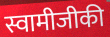
स्वामीजीकी